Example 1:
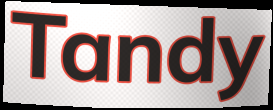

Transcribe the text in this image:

Tandy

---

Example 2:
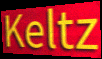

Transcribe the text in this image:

Keltz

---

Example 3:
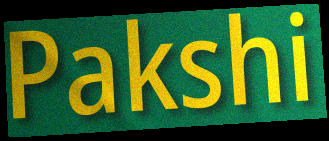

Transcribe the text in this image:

Pakshi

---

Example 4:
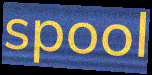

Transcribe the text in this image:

spool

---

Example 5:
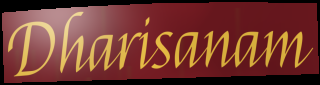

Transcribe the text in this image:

Dharisanam